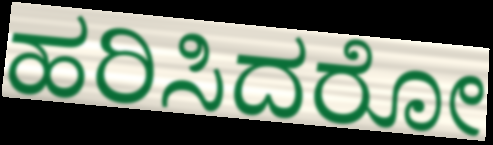
ಹರಿಸಿದರೋ